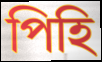
পিহি